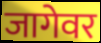
जागेवर